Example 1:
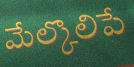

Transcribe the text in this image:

మేల్కొలిపే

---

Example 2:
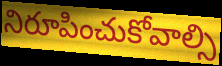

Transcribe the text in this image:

నిరూపించుకోవాల్సి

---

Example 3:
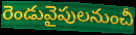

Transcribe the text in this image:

రెండువైపులనుంచీ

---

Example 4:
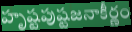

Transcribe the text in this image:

హృష్టపుష్టజనాకీర్ణం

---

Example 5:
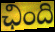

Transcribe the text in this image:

ఛింది